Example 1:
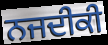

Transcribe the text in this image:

ਨਜਦੀਕੀ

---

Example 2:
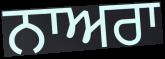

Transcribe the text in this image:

ਨਾਅਰਾ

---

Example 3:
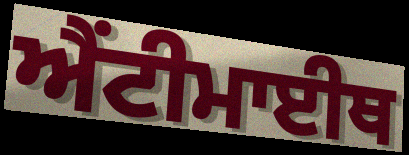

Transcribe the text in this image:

ਐਂਟੀਮਾਈਥ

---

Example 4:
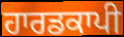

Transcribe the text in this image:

ਹਾਰਡਕਾਪੀ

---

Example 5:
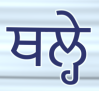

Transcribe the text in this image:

ਥਲ੍ਹੇ